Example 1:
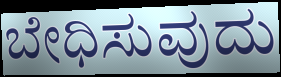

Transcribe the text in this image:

ಬೇಧಿಸುವುದು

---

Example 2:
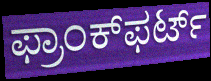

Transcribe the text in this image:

ಫ್ರಾಂಕ್‌ಫರ್ಟ್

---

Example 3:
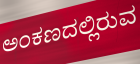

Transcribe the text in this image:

ಅಂಕಣದಲ್ಲಿರುವ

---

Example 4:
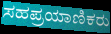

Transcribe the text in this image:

ಸಹಪ್ರಯಾಣಿಕರು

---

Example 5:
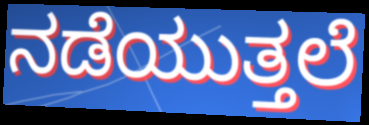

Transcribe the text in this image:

ನಡೆಯುತ್ತಲೆ